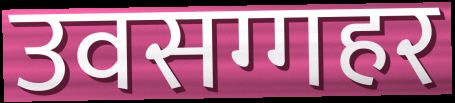
उवसग्गहर